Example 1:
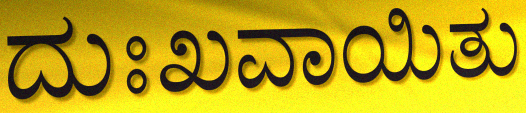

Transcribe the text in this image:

ದುಃಖವಾಯಿತು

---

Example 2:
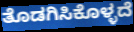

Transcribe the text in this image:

ತೊಡಗಿಸಿಕೊಳ್ಳದೆ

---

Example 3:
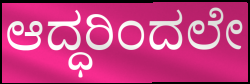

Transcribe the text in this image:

ಆದ್ಧರಿಂದಲೇ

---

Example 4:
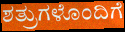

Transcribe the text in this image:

ಶತ್ರುಗಳೊಂದಿಗೆ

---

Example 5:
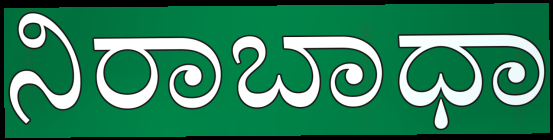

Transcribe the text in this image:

ನಿರಾಬಾಧಾ